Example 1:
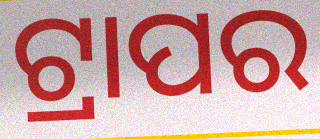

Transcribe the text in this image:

ଟ୍ରାପର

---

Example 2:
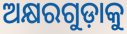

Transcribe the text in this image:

ଅକ୍ଷରଗୁଡ଼ାକୁ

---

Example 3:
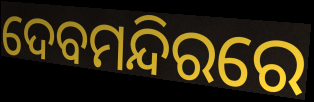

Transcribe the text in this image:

ଦେବମନ୍ଦିରରେ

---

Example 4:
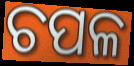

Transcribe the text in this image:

ଚପଳ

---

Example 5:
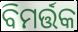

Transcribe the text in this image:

ବିମର୍ତ୍ତକ